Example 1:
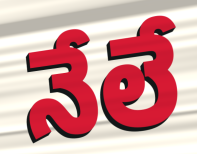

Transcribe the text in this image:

నేలే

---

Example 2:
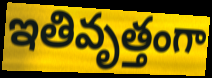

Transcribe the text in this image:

ఇతివృత్తంగా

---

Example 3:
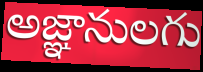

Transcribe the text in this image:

అజ్ఞానులగు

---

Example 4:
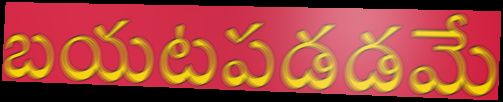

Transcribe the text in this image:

బయటపడడమే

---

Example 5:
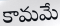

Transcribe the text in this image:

కామమే